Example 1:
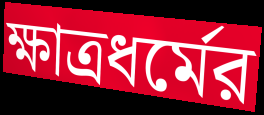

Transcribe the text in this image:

ক্ষাত্রধর্মের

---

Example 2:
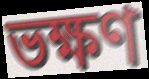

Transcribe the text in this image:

ভক্ষণ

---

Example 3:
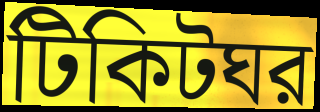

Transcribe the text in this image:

টিকিটঘর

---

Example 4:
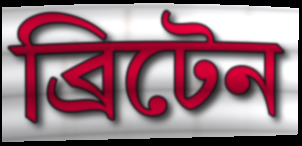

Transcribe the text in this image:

ব্রিটেন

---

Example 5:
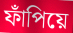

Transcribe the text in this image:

ফাঁপিয়ে